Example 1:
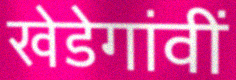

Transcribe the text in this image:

खेडेगांवीं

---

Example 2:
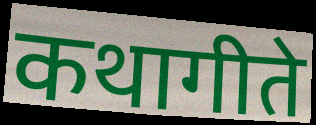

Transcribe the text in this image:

कथागीते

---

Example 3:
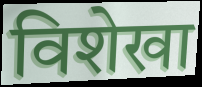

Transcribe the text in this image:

विशेखा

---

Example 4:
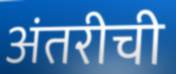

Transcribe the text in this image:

अंतरीची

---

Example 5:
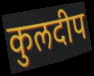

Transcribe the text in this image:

कुलदीप